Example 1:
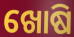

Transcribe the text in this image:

ଖୋଷି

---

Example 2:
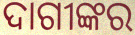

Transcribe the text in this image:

ଦାଗୀଙ୍କର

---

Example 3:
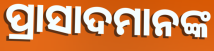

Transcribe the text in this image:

ପ୍ରାସାଦମାନଙ୍କ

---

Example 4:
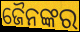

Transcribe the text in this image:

ଜୈନଙ୍କର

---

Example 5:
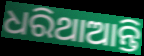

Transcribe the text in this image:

ଧରିଥାଆନ୍ତି